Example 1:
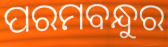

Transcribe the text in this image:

ପରମବନ୍ଧୁର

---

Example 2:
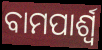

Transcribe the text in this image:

ବାମପାର୍ଶ୍ଵ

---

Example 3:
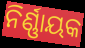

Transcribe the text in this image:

ନିର୍ଣ୍ଣାୟକ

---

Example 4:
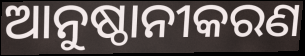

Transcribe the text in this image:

ଆନୁଷ୍ଠାନୀକରଣ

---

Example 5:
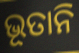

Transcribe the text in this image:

ଭୂତାନି